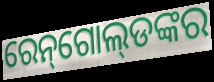
ରେନ୍‌ଗୋଲ୍‌ଡଙ୍କର